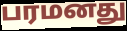
பரமனது